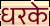
धरके